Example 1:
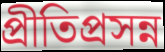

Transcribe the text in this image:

প্রীতিপ্রসন্ন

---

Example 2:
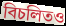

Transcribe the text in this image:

বিচলিতও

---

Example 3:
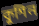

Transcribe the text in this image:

কুশিন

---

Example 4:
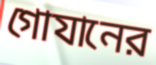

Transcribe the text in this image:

গোযানের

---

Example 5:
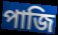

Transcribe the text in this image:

পাজি